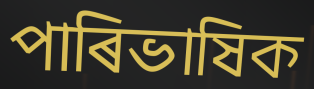
পাৰিভাষিক